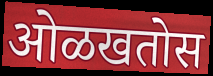
ओळखतोस